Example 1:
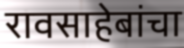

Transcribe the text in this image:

रावसाहेबांचा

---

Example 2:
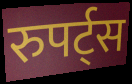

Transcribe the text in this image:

रुपर्ट्स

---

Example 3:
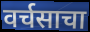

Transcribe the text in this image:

वर्चसाचा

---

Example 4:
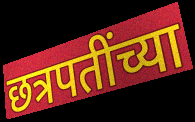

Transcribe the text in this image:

छत्रपतींच्या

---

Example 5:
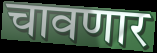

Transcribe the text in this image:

चावणार